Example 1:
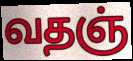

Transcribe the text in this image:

வதஞ்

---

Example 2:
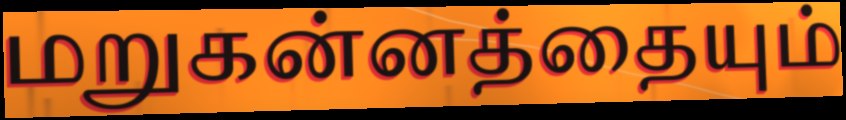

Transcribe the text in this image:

மறுகன்னத்தையும்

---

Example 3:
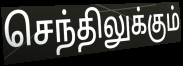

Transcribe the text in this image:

செந்திலுக்கும்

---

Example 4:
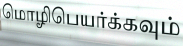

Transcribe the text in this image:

மொழிபெயர்க்கவும்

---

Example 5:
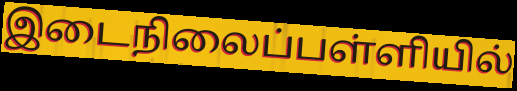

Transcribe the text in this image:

இடைநிலைப்பள்ளியில்